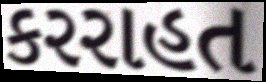
કરરાહત